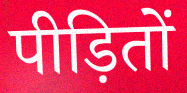
पीड़ितों